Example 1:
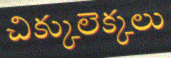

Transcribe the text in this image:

చిక్కులెక్కలు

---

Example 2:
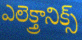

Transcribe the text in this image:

ఎలెక్త్రానిక్స్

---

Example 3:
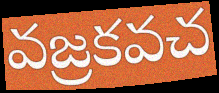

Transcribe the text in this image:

వజ్రకవచ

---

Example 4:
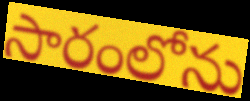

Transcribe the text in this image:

సారంలోను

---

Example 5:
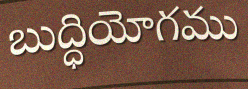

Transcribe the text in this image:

బుద్ధియోగము